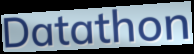
Datathon